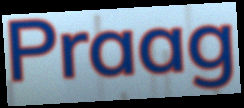
Praag